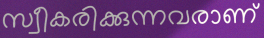
സ്വീകരിക്കുന്നവരാണ്